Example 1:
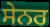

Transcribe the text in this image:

ਸੇਨਰ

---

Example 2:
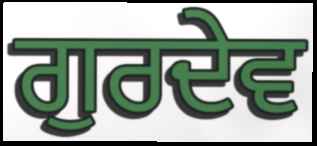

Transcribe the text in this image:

ਗੁਰਦੇਵ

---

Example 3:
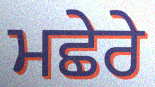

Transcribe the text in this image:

ਮਛੇਰੇ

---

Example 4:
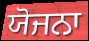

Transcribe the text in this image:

ਯੋਜਨਾ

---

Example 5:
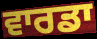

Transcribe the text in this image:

ਵਾਰਡਾ